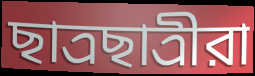
ছাত্রছাত্রীরা